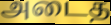
அடைத